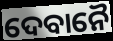
ଦେବାନୈ